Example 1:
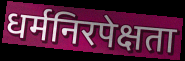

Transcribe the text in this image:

धर्मनिरपेक्षता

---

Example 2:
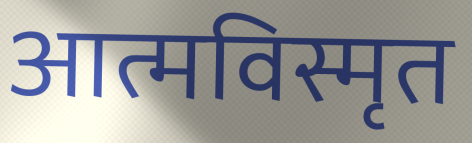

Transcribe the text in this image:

आत्मविस्मृत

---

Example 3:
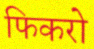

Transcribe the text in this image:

फिकरो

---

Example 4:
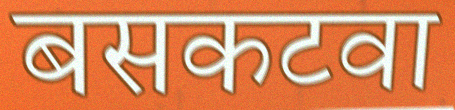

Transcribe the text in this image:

बसकटवा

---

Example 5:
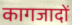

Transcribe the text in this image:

कागजादों